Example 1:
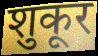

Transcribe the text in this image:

शुकूर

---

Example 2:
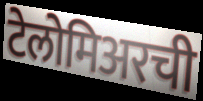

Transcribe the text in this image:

टेलोमिअरची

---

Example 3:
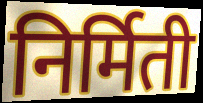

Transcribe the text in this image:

निर्मिती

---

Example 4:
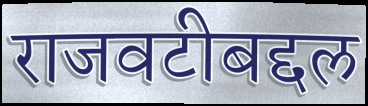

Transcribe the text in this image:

राजवटीबद्दल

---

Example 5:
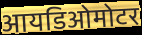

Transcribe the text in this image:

आयडिओमोटर